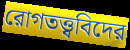
রোগতত্ত্ববিদের